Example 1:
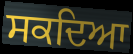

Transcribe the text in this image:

ਸਕਦਿਆ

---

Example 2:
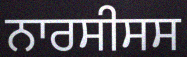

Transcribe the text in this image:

ਨਾਰਸੀਸਸ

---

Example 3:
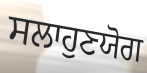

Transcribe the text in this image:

ਸਲਾਹੁਣਯੋਗ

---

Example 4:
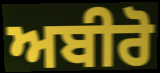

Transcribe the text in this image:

ਅਬੀਰੋ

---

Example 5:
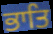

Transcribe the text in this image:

ਭਾਤਿ